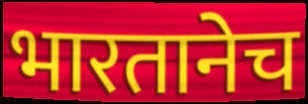
भारतानेच